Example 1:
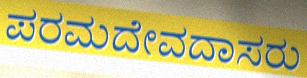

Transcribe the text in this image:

ಪರಮದೇವದಾಸರು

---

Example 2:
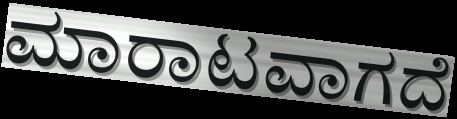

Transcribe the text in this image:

ಮಾರಾಟವಾಗದೆ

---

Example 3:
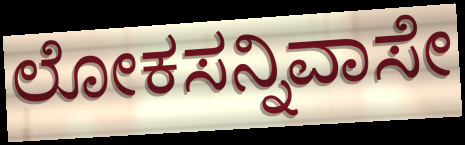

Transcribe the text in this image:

ಲೋಕಸನ್ನಿವಾಸೇ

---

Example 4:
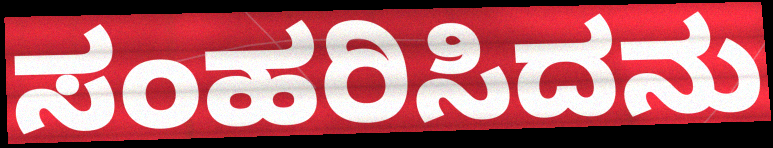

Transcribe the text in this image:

ಸಂಹರಿಸಿದನು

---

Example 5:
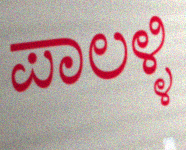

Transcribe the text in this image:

ಪಾಲಳ್ಳಿ